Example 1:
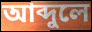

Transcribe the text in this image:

আব্দুলে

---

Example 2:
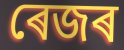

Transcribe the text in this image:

ৰেজৰ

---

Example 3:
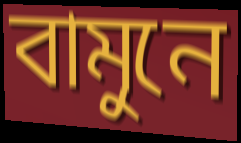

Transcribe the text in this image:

বামুনে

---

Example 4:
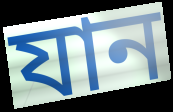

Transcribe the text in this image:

যান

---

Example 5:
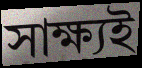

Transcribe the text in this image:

সাক্ষ্যই